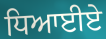
ਧਿਆਈਏ